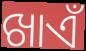
ଖାଏଁ